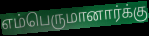
எம்பெருமானார்க்கு